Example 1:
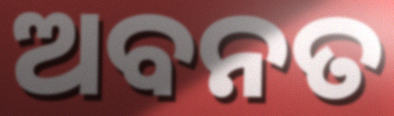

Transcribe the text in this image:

ଅବନତ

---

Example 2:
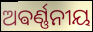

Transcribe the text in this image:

ଅଵର୍ଣ୍ଣନୀୟ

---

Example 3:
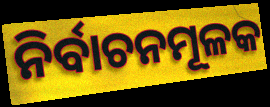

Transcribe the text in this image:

ନିର୍ବାଚନମୂଳକ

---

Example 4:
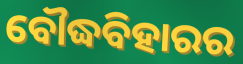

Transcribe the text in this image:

ବୌଦ୍ଧବିହାରର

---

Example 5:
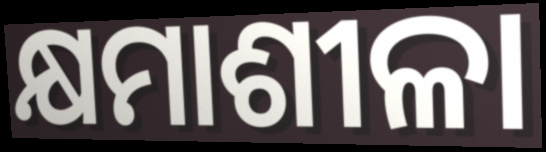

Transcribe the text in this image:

କ୍ଷମାଶୀଳା